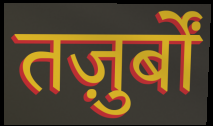
तज़ुर्बों